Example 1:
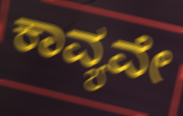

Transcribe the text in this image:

ಕಾವ್ಯವೇ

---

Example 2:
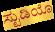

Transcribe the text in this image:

ಸ್ಟುಡಿಯೊ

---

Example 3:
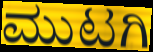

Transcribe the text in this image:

ಮುಟಗಿ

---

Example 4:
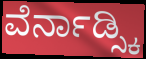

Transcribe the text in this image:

ವೆರ್ನಾಡ್ಸ್ಕಿ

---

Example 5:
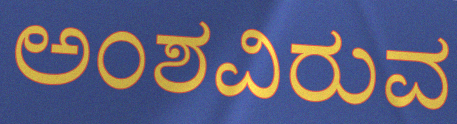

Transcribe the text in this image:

ಅಂಶವಿರುವ